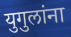
युगुलांना